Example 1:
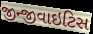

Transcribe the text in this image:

જીન્જીવાઇટિસ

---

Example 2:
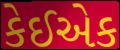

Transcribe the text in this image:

કેઈએક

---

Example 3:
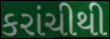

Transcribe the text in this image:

કરાંચીથી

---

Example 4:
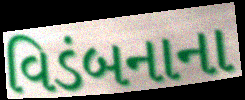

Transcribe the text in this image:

વિડંબનાના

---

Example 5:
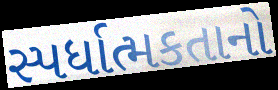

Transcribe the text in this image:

સ્પર્ધાત્મકતાનો